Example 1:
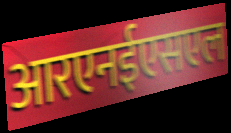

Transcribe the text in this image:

आरएनईएसएल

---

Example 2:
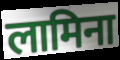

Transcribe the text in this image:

लामिना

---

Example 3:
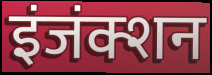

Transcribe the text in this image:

इंजंक्शन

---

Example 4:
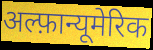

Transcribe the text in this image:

अल्फ़ान्यूमेरिक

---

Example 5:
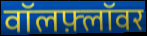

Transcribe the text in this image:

वॉलफ़्लॉवर